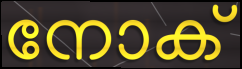
നോക്